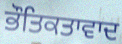
ਭੌਤਿਕਤਾਵਾਦ